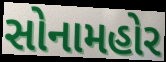
સોનામહોર